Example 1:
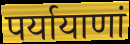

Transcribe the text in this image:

पर्यायाणां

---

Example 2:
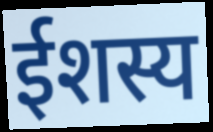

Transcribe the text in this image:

ईशस्य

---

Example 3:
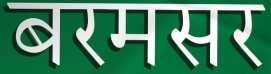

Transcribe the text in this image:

बरमसर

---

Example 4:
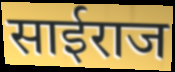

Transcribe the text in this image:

साईराज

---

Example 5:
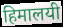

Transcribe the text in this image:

हिमालयी